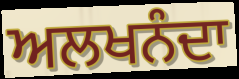
ਅਲਖਨੰਦਾ